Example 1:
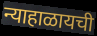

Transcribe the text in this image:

न्याहाळायची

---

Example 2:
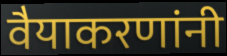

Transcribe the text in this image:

वैयाकरणांनी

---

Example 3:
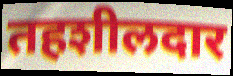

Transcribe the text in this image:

तहशीलदार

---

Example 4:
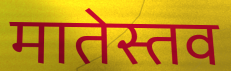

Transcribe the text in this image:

मातेस्तव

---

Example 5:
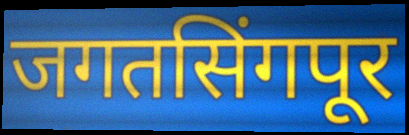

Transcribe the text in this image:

जगतसिंगपूर